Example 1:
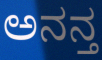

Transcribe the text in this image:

ಅನನ್ತ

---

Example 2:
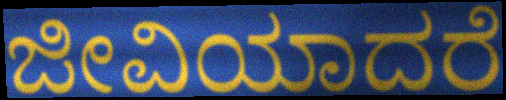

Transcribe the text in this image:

ಜೀವಿಯಾದರೆ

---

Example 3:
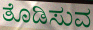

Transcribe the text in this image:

ತೊಡಿಸುವ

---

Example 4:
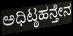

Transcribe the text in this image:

ಅಧಿಟ್ಠಹನ್ತೇನ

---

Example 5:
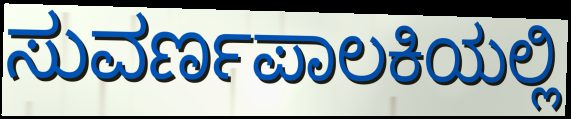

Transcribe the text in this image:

ಸುವರ್ಣಪಾಲಕಿಯಲ್ಲಿ